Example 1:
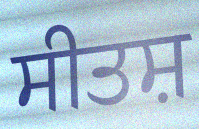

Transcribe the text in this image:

ਸੀਤਸ਼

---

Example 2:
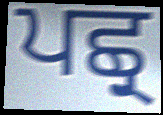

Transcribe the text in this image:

ਪਛ੍ਰ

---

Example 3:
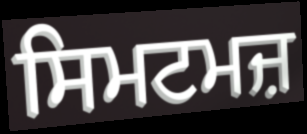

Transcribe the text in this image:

ਸਿਮਟਮਜ਼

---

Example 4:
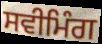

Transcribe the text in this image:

ਸਵੀਮਿੰਗ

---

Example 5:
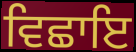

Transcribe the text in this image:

ਵਿਛਾਇ